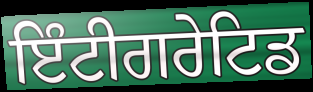
ਇੰਟੀਗਰੇਟਿਡ